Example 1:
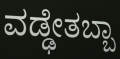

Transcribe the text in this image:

ವಡ್ಢೇತಬ್ಬಾ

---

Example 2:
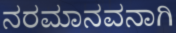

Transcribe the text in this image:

ನರಮಾನವನಾಗಿ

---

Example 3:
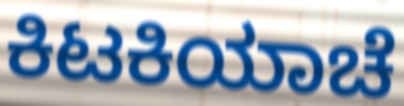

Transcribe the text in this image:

ಕಿಟಕಿಯಾಚೆ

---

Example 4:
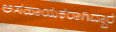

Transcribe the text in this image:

ಅಸಹಾಯಕರಾಗಿದ್ದಾರೆ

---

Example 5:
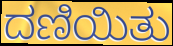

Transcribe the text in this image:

ದಣಿಯಿತು